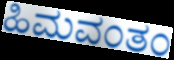
ಹಿಮವಂತಂ